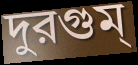
দুরগুম্